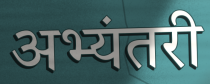
अभ्यंतरी